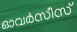
ഓവർസീസ്